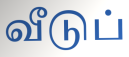
வீடுப்